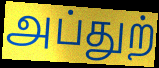
அப்துற்